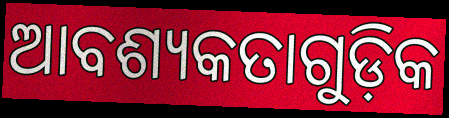
ଆବଶ୍ୟକତାଗୁଡ଼ିକ